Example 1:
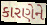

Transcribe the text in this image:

કારણેને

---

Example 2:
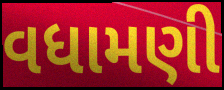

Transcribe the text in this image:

વધામણી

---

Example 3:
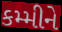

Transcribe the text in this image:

કમ્મીને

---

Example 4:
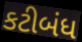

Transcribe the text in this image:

કટીબંધ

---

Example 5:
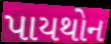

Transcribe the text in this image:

પાયથોન